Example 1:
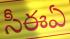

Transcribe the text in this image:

సీఈఏ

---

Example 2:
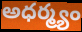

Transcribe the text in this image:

అధర్మ్యం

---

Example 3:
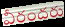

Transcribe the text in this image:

వీరందరు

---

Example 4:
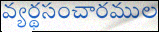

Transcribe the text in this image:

వ్యర్థసంచారముల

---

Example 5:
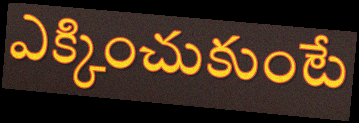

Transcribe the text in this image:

ఎక్కించుకుంటే